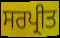
ਸਰਪ੍ਰੀਤ